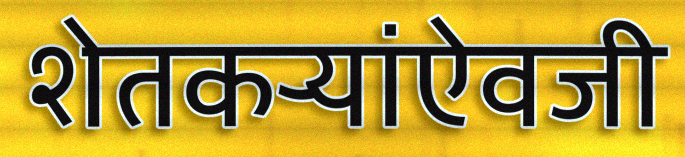
शेतकऱ्यांऐवजी